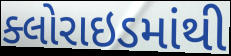
ક્લોરાઇડમાંથી